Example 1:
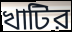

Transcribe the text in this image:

খাটির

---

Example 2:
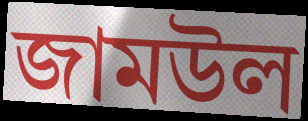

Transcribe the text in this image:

জামউল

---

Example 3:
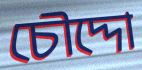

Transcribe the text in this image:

চৌদ্দো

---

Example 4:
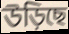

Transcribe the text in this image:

উড়িছে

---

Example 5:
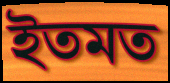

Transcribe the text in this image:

ইতমত